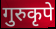
गुरुकृपे